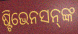
ଷ୍ଟିଭେନସନ୍‍ଙ୍କ